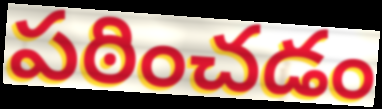
పఠించడం